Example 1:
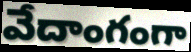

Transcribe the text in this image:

వేదాంగంగా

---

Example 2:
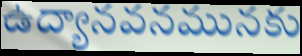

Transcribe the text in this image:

ఉద్యానవనమునకు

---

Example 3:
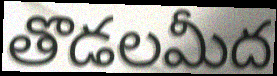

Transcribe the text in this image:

తొడలమీద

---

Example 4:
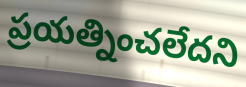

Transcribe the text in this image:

ప్రయత్నించలేదని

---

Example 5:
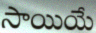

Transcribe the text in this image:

సాయియే